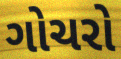
ગોચરો